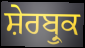
ਸ਼ੇਰਬ੍ਰੁਕ